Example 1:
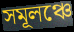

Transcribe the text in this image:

সমূলঞ্চে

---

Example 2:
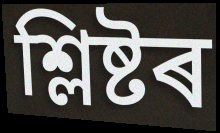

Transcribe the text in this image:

শ্লিষ্টৰ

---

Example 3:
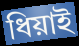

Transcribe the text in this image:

ধিয়াই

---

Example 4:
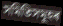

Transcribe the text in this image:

সমিতিসমূহৰ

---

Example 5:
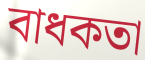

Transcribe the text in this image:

বাধকতা